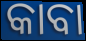
କାବା